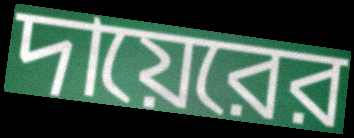
দায়েরের